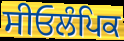
ਸੀਓਲੰਪਿਕ